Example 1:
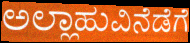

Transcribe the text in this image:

ಅಲ್ಲಾಹುವಿನೆಡೆಗೆ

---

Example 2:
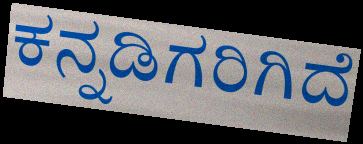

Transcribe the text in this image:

ಕನ್ನಡಿಗರಿಗಿದೆ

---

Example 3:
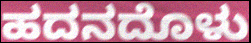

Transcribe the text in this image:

ಹದನದೊಳು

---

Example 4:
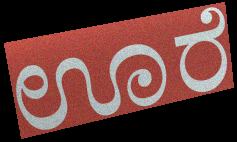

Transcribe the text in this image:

ಊರೆ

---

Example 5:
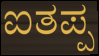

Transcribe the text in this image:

ಐತಪ್ಪ